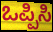
ಒಪ್ಪಿಸಿ